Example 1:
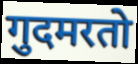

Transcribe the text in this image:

गुदमरतो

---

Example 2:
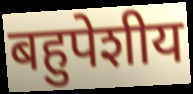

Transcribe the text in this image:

बहुपेशीय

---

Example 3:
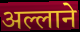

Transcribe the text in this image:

अल्लाने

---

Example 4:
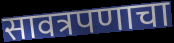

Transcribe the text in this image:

सावत्रपणाचा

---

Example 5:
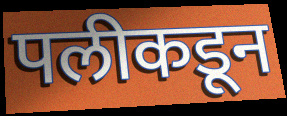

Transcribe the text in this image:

पलीकडून